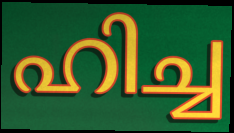
ഹിച്ച